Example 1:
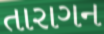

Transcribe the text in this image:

તારાગન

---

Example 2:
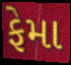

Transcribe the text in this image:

ફેમા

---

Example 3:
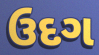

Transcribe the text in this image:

ઉદગ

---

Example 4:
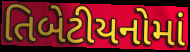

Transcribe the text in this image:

તિબેટીયનોમાં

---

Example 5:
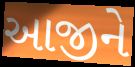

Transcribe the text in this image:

આજીને